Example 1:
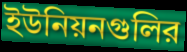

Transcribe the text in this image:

ইউনিয়নগুলির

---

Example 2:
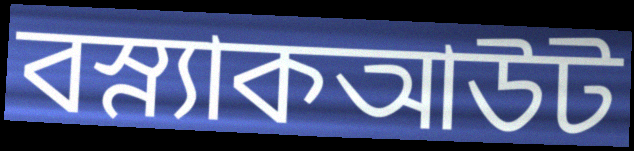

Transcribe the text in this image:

বস্ন্যাকআউট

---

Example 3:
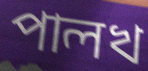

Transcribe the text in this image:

পালখ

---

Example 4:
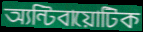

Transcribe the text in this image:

অ্যন্টিবায়োটিক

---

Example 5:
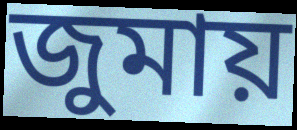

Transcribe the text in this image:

জুমায়